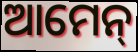
ଆମେନ୍